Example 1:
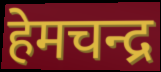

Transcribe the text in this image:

हेमचन्द्र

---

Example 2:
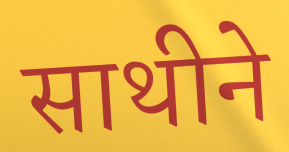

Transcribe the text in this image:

साथीने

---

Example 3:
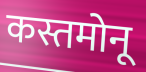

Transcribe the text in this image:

कस्तमोनू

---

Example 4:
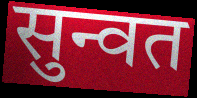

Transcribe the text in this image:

सुन्वत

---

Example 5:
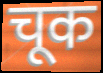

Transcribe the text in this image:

चूक